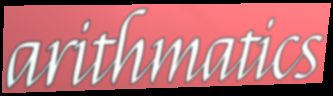
arithmatics